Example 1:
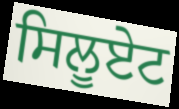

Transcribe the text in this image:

ਸਿਲੂਏਟ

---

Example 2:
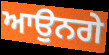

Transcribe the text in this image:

ਆਉਨਗੇ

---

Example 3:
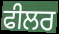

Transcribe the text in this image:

ਫੀਲਰ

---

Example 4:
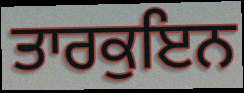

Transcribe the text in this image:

ਤਾਰਕੁਇਨ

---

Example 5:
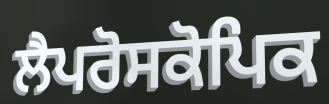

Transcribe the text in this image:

ਲੈਪਰੋਸਕੋਪਿਕ